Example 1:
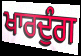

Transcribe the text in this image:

ਖਾਰਦੁੰਗ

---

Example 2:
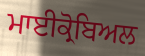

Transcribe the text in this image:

ਮਾਈਕ੍ਰੋਬਿਅਲ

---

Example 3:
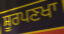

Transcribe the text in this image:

ਸ਼ੂਰਪਣਖਾ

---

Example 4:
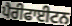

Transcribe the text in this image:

ਪੈਰੀਫਾਈਟਨ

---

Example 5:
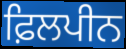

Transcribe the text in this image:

ਫ਼ਿਲਪੀਨ